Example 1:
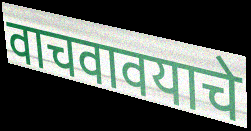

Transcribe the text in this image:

वाचवावयाचे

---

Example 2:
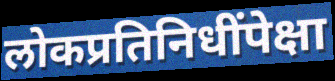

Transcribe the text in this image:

लोकप्रतिनिधींपेक्षा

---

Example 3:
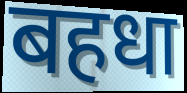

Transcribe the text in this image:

बहधा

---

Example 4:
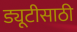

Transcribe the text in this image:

ड्यूटीसाठी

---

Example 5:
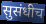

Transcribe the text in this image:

सुसंधीच